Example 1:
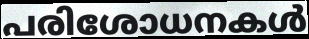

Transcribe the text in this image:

പരിശോധനകൾ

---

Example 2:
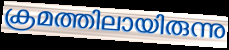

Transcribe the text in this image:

ക്രമത്തിലായിരുന്നു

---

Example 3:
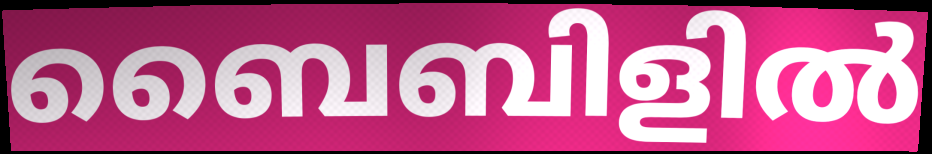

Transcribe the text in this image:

ബൈബിളിൽ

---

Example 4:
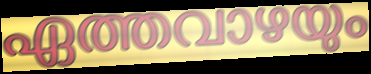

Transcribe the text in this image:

ഏത്തവാഴയും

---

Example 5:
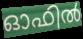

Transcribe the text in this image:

ഓഫിൽ